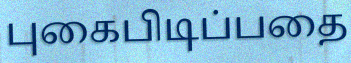
புகைபிடிப்பதை